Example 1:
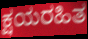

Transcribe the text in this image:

ಕ್ಷಯರಹಿತ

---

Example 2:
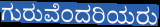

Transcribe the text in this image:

ಗುರುವೆಂದರಿಯರು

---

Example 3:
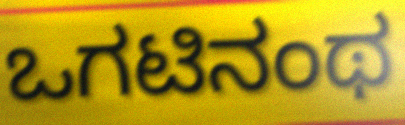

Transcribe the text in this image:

ಒಗಟಿನಂಥ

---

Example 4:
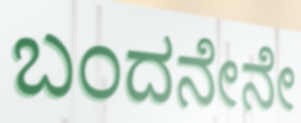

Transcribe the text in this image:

ಬಂದನೇನೇ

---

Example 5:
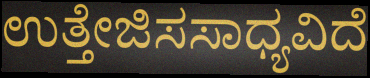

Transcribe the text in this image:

ಉತ್ತೇಜಿಸಸಾಧ್ಯವಿದೆ